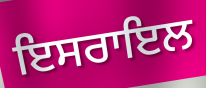
ਇਸਰਾਇਲ